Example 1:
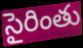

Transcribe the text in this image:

సైరింతు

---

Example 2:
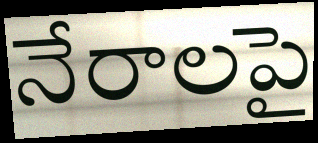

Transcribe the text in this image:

నేరాలపై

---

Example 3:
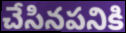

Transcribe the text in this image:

చేసినపనికి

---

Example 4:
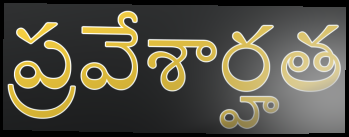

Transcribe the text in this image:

ప్రవేశార్హత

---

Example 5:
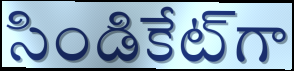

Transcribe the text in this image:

సిండికేట్‌గా